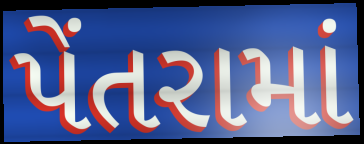
પેંતરામાં